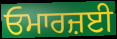
ਓਮਾਰਜ਼ਈ